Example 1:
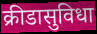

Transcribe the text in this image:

क्रीडासुविधा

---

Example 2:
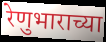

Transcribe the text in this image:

रेणुभाराच्या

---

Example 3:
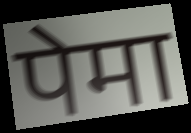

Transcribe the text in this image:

पेमा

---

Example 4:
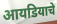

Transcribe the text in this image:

आयडियाचे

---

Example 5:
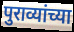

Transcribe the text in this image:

पुराव्यांच्या